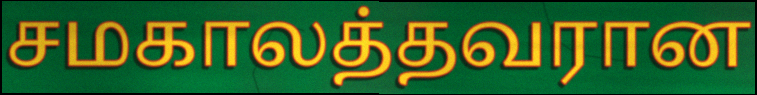
சமகாலத்தவரான